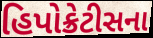
હિપોક્રેટીસના